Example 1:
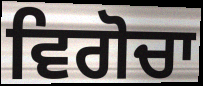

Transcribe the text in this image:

ਵਿਗੋਚਾ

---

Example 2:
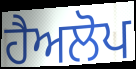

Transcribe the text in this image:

ਹੈਅਲੋਪ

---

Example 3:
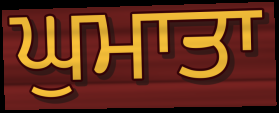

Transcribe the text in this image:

ਘੁਮਾਤਾ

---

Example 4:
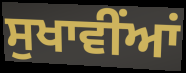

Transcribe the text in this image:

ਸੁਖਾਵੀਂਆਂ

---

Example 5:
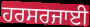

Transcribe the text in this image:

ਹਰਸਰਜਾਈ